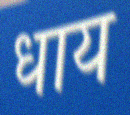
धाय